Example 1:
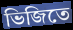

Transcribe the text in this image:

ভিজিতে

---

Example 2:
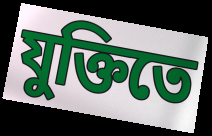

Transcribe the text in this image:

যুক্তিতে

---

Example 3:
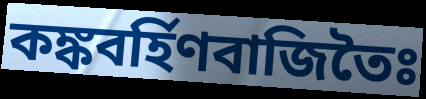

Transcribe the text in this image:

কঙ্কবর্হিণবাজিতৈঃ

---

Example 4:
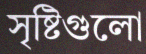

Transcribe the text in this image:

সৃষ্টিগুলো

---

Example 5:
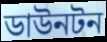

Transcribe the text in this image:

ডাউনটন